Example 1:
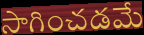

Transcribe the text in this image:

సాగించడమే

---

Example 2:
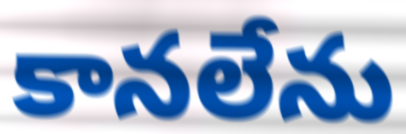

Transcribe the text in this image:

కానలేను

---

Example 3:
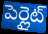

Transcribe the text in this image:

పెర్లైట్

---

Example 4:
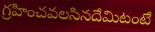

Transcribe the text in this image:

గ్రహించవలసినదేమిటంటే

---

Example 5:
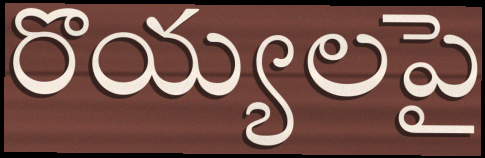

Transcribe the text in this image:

రొయ్యలపై